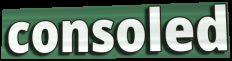
consoled